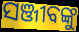
ସଞ୍ଜୀବଙ୍କୁ